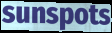
sunspots